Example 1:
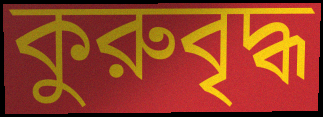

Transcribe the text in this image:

কুরুবৃদ্ধ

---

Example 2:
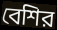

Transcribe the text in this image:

বেশির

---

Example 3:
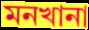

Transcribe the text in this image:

মনখানা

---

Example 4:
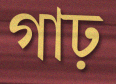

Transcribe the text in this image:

গাঢ়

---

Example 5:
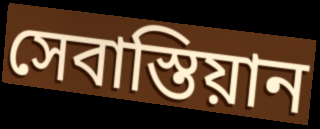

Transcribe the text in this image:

সেবাস্তিয়ান